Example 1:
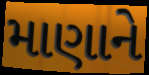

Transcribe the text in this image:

માણાને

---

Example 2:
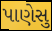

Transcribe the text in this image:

પાણેસુ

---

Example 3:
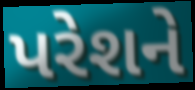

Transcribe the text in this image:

પરેશને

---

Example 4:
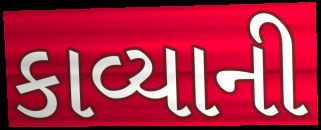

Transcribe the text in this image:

કાવ્યાની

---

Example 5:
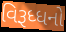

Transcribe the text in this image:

વિરૂધ્ધનો